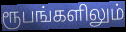
ரூபங்களிலும்